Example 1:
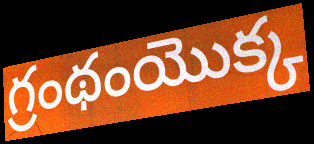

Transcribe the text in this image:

గ్రంథంయొక్క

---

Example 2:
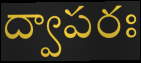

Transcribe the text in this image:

ద్వాపరః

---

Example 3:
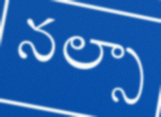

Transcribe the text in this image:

నల్సా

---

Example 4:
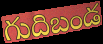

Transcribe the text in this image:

గుదిబండ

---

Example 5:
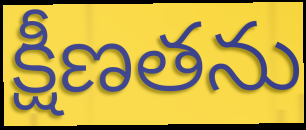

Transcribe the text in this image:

క్షీణతను